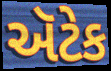
ઍટેક